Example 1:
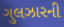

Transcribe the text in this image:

ગુલઝારની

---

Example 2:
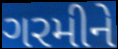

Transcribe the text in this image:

ગરમીને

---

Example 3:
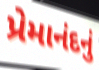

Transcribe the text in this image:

પ્રેમાનંદનું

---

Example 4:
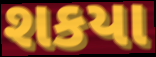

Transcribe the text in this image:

શકયા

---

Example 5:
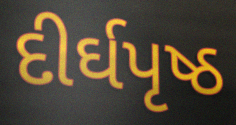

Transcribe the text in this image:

દીર્ઘપૃષ્ઠ